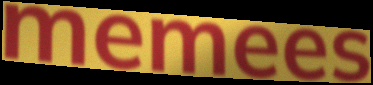
memees